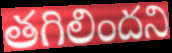
తగిలిందని